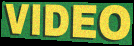
VIDEO